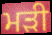
ਮੜੀ